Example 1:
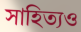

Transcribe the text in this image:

সাহিত্যও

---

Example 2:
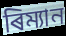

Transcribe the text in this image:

ৰিম্যান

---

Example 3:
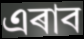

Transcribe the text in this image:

এৰাব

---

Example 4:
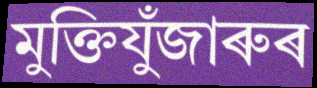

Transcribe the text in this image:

মুক্তিযুঁজাৰুৰ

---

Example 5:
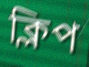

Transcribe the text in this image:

ক্লিপ